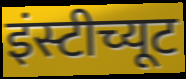
इंस्‍टीच्‍यूट